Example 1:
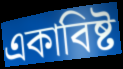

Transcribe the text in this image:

একাবিষ্ট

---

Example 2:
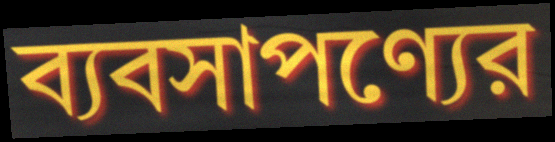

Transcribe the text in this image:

ব্যবসাপণ্যের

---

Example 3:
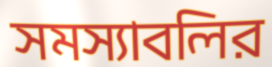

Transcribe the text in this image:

সমস্যাবলির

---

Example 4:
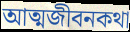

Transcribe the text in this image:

আত্মজীবনকথা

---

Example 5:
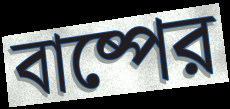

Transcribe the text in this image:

বাষ্পের